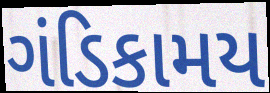
ગંડિકામય